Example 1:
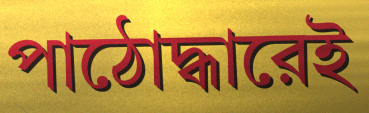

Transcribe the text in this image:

পাঠোদ্ধারেই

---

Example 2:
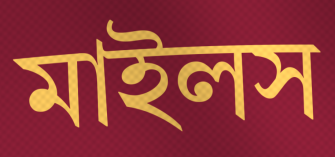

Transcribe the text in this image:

মাইলস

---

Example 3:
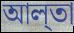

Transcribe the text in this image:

আল্‌তা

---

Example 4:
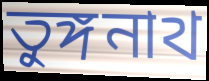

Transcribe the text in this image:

তুঙ্গনাথ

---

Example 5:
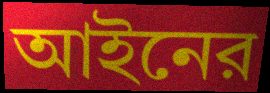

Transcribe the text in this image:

আইনের